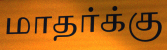
மாதர்க்கு